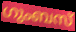
ഗുംബസ്